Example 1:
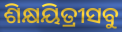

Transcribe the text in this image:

ଶିକ୍ଷୟିତ୍ରୀସବୁ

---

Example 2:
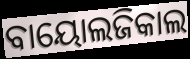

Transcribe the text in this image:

ବାୟୋଲଜିକାଲ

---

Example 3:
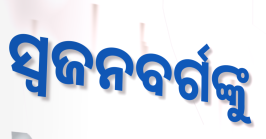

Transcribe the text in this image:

ସ୍ୱଜନବର୍ଗଙ୍କୁ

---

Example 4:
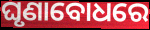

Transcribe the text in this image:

ଘୃଣାବୋଧରେ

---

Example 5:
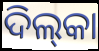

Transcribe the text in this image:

ଦିଲ୍‌କା